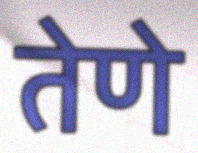
तेणे